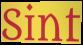
Sint